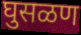
घुसळण